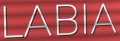
LABIA